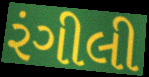
રંગીલી